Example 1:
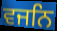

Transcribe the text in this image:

ਵਜਨਿ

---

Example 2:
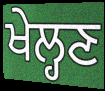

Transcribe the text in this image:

ਖੇਲ੍ਹਣ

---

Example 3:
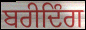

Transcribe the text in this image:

ਬਰੀਦਿੰਗ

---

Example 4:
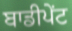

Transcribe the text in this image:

ਬਾਡੀਪੇਂਟ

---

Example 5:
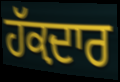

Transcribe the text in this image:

ਹੱਕ਼ਦਾਰ